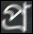
প্ৰ